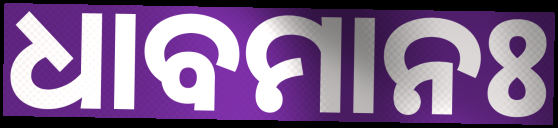
ଧାବମାନଃ